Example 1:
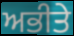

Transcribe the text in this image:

ਅਭੀਤੇ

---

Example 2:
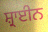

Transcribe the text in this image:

ਸ਼੍ਰਾਈਨ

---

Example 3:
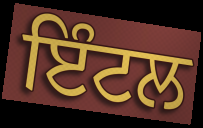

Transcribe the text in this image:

ਇੰਟਲ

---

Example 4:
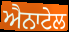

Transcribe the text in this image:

ਐਨਾਟੇਲ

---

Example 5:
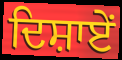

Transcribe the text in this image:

ਦਿਸ਼ਾਏਂ